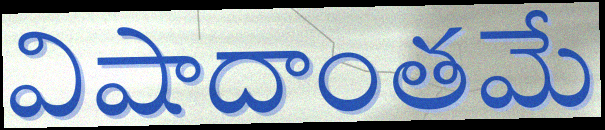
విషాదాంతమే